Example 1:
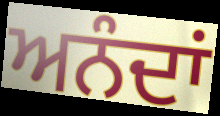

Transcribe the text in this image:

ਅਨੰਦਾਂ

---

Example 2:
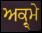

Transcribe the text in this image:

ਅਕ੍ਰ੍ਮੇ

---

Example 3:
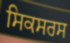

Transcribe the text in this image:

ਸਿਕਸਰਸ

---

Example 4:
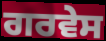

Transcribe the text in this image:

ਗਰਵੇਸ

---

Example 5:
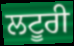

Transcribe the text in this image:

ਲਟੂਰੀ